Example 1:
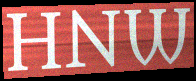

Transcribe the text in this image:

HNW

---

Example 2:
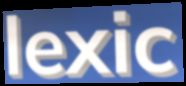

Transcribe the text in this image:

lexic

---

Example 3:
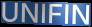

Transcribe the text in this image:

UNIFIN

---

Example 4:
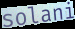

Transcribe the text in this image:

solani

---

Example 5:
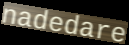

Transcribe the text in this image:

nadedare